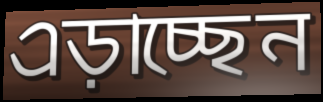
এড়াচ্ছেন